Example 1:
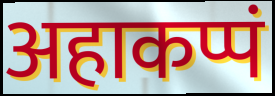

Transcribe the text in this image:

अहाकप्पं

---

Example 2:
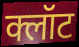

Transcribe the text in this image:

क्‍लॉट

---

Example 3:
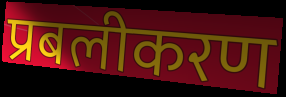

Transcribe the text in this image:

प्रबलीकरण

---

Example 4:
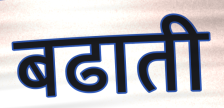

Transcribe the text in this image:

बढाती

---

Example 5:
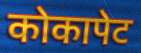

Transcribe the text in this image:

कोकापेट